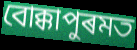
বোক্কাপুৰমত